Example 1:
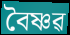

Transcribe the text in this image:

বৈষ্ণৱ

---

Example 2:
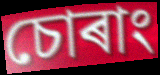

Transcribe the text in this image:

চোৰাং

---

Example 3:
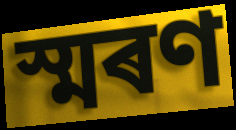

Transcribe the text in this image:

স্মৰণ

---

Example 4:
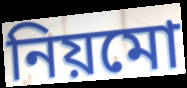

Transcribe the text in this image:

নিয়মো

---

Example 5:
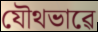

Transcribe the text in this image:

যৌথভাৱে